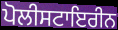
ਪੋਲੀਸਟਾਇਰੀਨ